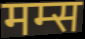
मम्स